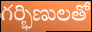
గర్భిణులతో